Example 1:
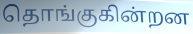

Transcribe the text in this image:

தொங்குகின்றன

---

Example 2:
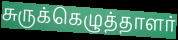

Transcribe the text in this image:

சுருக்கெழுத்தாளர்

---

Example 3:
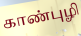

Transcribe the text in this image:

காண்புழி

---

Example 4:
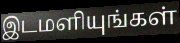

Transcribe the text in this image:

இடமளியுங்கள்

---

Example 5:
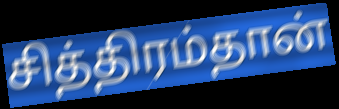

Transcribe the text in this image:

சித்திரம்தான்